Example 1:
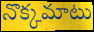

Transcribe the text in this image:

నొక్కమాటు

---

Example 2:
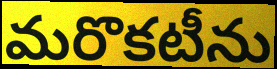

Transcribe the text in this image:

మరొకటీను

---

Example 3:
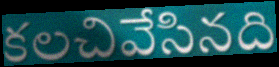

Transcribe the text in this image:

కలచివేసినది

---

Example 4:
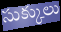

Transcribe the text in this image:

సుక్కులు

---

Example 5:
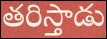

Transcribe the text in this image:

తరిస్తాడు